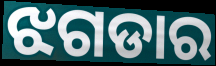
ଝଗଡାର